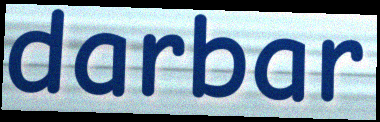
darbar